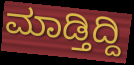
ಮಾಡ್ತಿದ್ದಿ